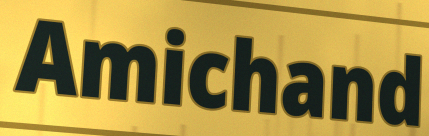
Amichand